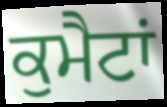
ਕੁਮੈਟਾਂ